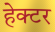
हेक्‍टर